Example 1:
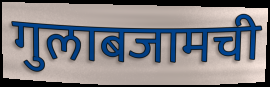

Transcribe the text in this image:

गुलाबजामची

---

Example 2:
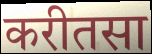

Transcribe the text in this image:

करीतसा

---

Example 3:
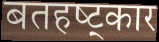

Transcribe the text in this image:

बतहष्ट्कार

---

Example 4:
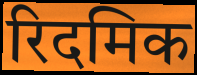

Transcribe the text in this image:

रिदमिक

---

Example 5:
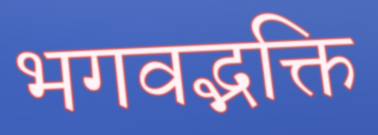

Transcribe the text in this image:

भगवद्भक्ति